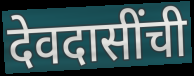
देवदासींची